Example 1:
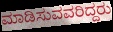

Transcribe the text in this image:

ಮಾಡಿಸುವವರಿದ್ದರು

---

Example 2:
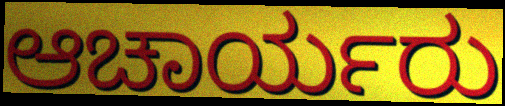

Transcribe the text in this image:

ಆಚಾರ್ಯರು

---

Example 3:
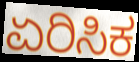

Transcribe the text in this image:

ಏರಿಸಿಕ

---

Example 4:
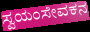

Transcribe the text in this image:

ಸ್ವಯಂಸೇವಕನ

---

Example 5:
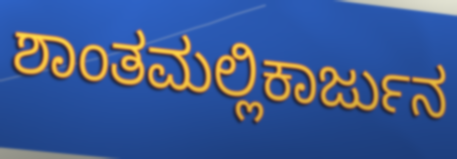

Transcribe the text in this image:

ಶಾಂತಮಲ್ಲಿಕಾರ್ಜುನ